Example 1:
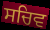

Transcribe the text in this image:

ਸਚਿਵ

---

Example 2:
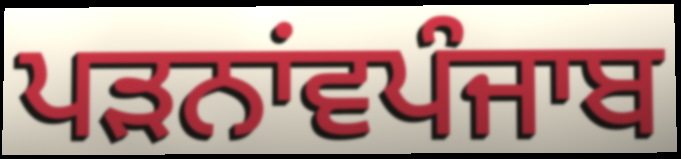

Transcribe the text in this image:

ਪੜਨਾਂਵਪੰਜਾਬ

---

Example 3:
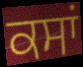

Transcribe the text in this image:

ਕਸਾਂ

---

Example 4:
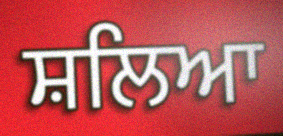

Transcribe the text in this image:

ਸ਼ਲਿਆ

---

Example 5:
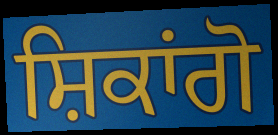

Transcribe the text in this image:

ਸ਼ਿਕਾਂਗੋ